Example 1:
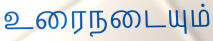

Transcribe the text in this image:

உரைநடையும்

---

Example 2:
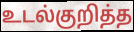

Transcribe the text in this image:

உடல்குறித்த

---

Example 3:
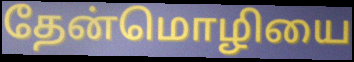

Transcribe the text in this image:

தேன்மொழியை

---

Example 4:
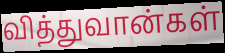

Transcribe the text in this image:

வித்துவான்கள்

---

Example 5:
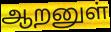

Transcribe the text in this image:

ஆறனுள்